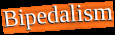
Bipedalism